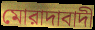
মোরাদাবাদী